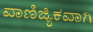
ವಾಣಿಜ್ಯಿಕವಾಗಿ